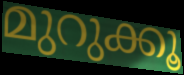
മുറുക്കൂ